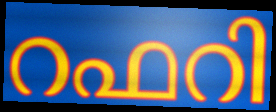
റഫറി